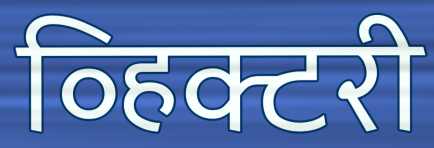
व्हिक्टरी